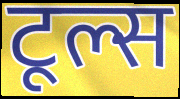
टूल्स